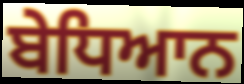
ਬੇਧਿਆਨ